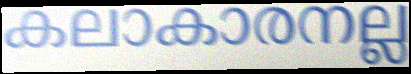
കലാകാരനല്ല